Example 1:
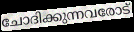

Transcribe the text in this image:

ചോദിക്കുന്നവരോട്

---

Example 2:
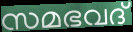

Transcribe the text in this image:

സമഭവദ്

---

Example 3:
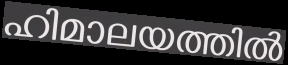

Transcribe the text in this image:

ഹിമാലയത്തിൽ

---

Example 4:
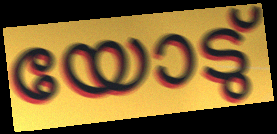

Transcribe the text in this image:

യോടു്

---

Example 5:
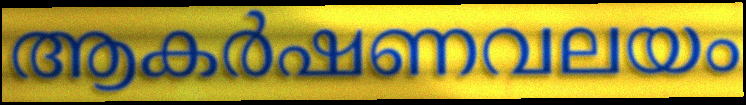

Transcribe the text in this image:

ആകർഷണവലയം